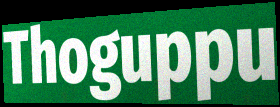
Thoguppu